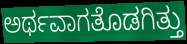
ಅರ್ಥವಾಗತೊಡಗಿತ್ತು